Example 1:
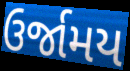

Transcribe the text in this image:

ઉર્જામય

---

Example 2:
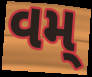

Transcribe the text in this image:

વમ્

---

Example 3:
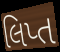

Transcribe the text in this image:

લિપ્ત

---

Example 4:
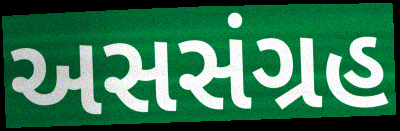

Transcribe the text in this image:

અસસંગ્રહ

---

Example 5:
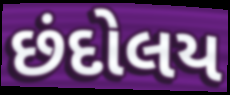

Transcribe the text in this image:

છંદોલય